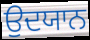
ਉਦਯਾਨ